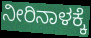
ನೀರಿನಾಳಕ್ಕೆ